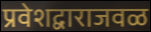
प्रवेशद्वाराजवळ